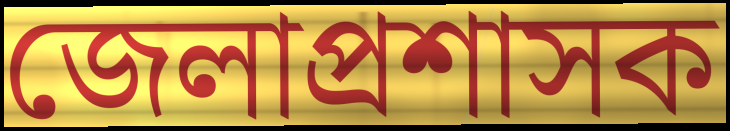
জেলাপ্রশাসক